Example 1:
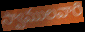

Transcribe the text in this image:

స్వాములవారి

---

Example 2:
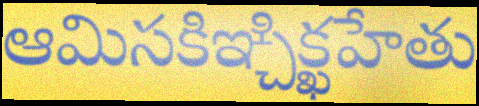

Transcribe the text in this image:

ఆమిసకిఞ్చిక్ఖహేతు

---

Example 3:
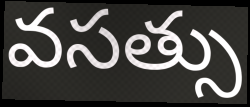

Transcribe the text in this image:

వసత్సు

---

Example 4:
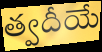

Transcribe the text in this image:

త్వదీయే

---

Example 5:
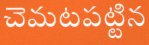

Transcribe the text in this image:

చెమటపట్టిన